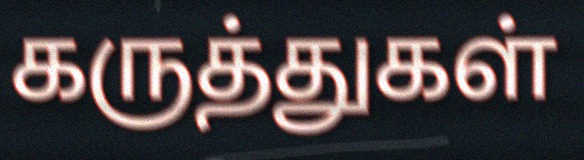
கருத்துகள்